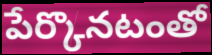
పేర్కొనటంతో